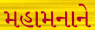
મહામનાને